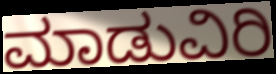
ಮಾಡುವಿರಿ